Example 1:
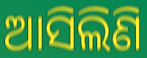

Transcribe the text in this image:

ଆସିଲିଣି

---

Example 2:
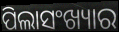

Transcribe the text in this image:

ପିଲାସଂଖ୍ୟାର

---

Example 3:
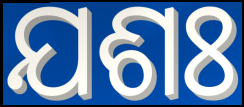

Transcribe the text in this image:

ଯଶଃ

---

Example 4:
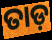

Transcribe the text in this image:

ତାଡ଼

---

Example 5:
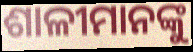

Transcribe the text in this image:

ଶାଳୀମାନଙ୍କୁ